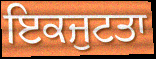
ਇਕਜੁਟਤਾ